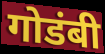
गोडंबी